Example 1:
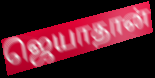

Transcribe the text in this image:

ஜெயாதான்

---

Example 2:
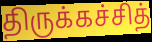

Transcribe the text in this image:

திருக்கச்சித்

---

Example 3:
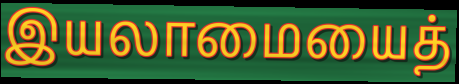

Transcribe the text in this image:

இயலாமையைத்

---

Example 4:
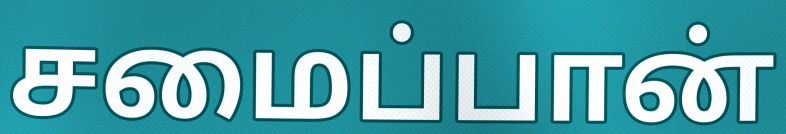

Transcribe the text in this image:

சமைப்பான்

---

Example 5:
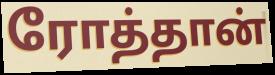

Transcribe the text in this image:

ரோத்தான்